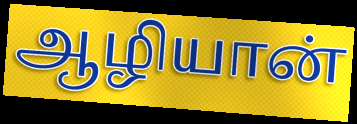
ஆழியான்